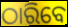
ଠାରିବେ